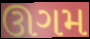
ઊગમ